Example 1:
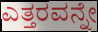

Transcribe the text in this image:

ಎತ್ತರವನ್ನೇ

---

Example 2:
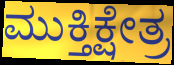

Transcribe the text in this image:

ಮುಕ್ತಿಕ್ಷೇತ್ರ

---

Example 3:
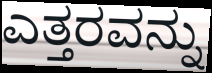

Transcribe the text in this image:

ಎತ್ತರವನ್ನು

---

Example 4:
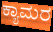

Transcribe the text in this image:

ಕ್ಯಾಮರ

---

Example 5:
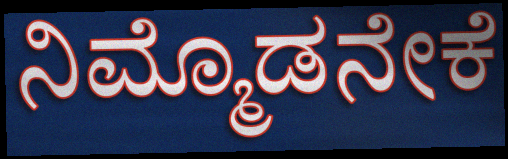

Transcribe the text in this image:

ನಿಮ್ಮೊಡನೇಕೆ